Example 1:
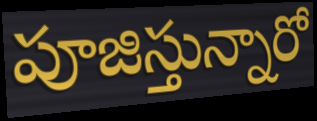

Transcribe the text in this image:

పూజిస్తున్నారో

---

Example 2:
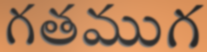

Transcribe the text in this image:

గతముగ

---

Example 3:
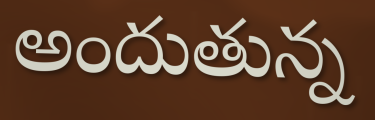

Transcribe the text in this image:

అందుతున్న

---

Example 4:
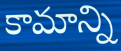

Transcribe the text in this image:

కామాన్ని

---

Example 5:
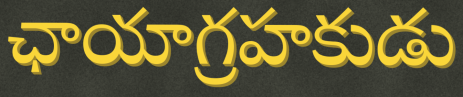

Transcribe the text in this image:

ఛాయాగ్రహకుడు